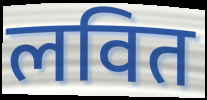
लवित